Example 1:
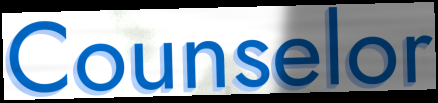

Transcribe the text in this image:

Counselor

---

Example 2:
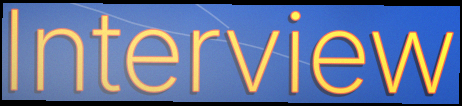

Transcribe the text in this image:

Interview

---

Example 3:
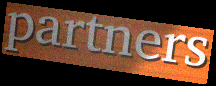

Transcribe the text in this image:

partners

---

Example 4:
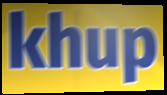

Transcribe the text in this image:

khup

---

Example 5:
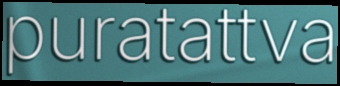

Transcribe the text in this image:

puratattva